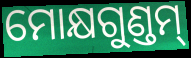
ମୋକ୍ଷଗୁଣ୍ଡମ୍